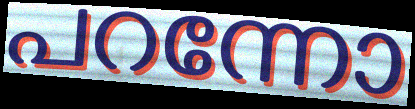
പറന്നോ